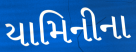
યામિનીના